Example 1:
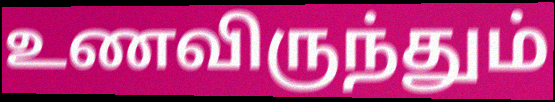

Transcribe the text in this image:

உணவிருந்தும்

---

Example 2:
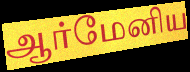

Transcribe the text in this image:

ஆர்மேனிய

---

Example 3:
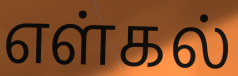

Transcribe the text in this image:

எள்கல்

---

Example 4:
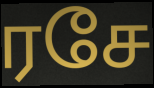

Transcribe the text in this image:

ரசே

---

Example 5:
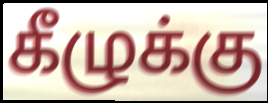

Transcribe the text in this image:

கீழுக்கு